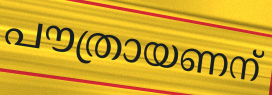
പൗത്രായണന്